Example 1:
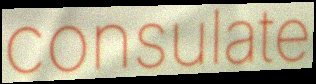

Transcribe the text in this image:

consulate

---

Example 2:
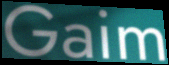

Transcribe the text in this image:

Gaim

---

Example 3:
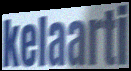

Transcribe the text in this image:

kelaarti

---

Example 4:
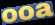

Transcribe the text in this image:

ooa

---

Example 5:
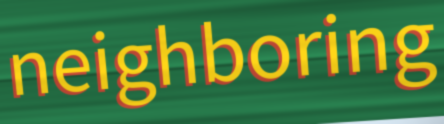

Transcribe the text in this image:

neighboring